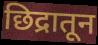
छिद्रातून